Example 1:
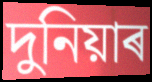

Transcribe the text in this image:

দুনিয়াৰ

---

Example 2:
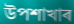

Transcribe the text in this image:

উপশাখাৰ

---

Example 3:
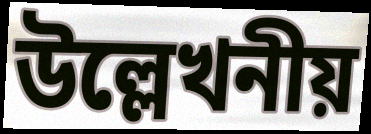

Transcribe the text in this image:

উল্লেখনীয়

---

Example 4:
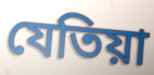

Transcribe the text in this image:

যেতিয়া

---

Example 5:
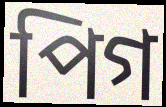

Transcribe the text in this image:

পিগ